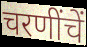
चरणींचें